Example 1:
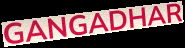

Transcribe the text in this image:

GANGADHAR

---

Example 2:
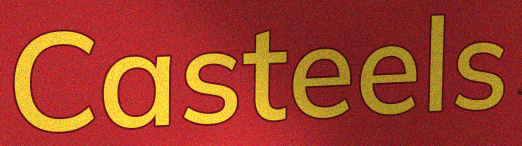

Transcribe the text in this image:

Casteels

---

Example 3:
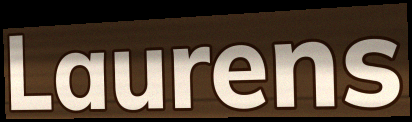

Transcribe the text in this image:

Laurens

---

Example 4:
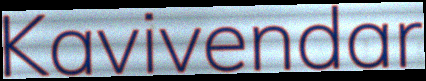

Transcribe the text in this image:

Kavivendar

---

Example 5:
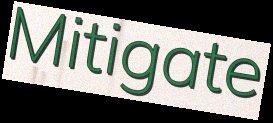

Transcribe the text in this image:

Mitigate